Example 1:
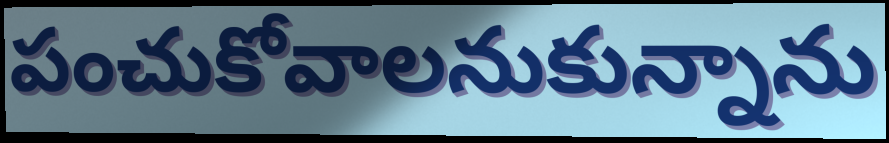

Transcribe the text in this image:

పంచుకోవాలనుకున్నాను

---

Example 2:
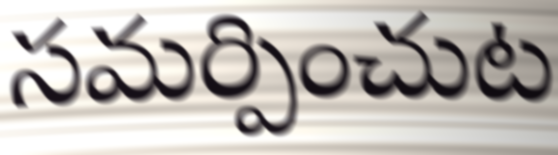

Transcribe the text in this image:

సమర్పించుట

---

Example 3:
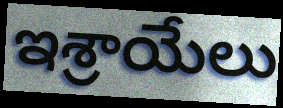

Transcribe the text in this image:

ఇశ్రాయేలు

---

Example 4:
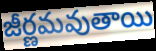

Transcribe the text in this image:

జీర్ణమవుతాయి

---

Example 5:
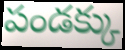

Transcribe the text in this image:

పండక్కు